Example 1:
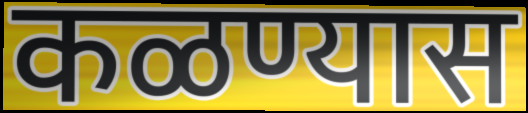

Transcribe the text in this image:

कळण्यास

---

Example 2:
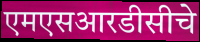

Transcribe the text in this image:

एमएसआरडीसीचे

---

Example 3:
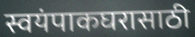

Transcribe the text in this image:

स्वयंपाकघरासाठी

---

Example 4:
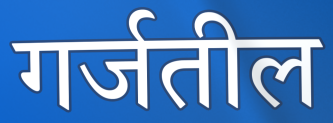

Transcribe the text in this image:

गर्जतील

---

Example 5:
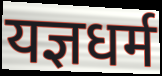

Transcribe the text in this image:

यज्ञधर्म